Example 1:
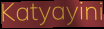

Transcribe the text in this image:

Katyayini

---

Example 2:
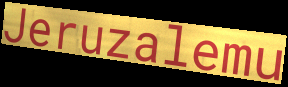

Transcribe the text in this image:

Jeruzalemu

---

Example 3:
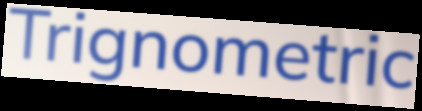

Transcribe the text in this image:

Trignometric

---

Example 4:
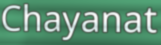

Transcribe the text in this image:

Chayanat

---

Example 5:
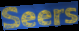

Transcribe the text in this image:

Seers